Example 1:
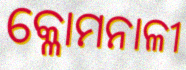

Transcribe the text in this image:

କ୍ଳୋମନାଳୀ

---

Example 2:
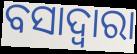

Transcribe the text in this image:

ବସାଦ୍ୱାରା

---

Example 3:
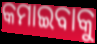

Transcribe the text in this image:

କମାଇବାକୁ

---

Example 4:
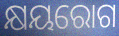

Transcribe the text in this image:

କ୍ଷୟରୋଗ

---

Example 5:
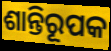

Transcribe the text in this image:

ଶାନ୍ତିରୂପକ